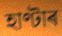
হাণ্টাৰ